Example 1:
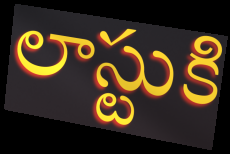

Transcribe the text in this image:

లాస్టుకి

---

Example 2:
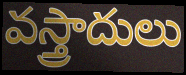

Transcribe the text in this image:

వస్త్రాదులు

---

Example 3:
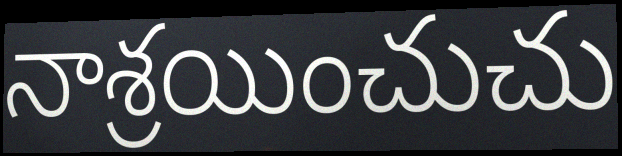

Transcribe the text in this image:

నాశ్రయించుచు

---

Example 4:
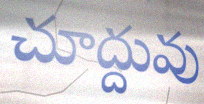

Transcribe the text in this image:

చూద్దువు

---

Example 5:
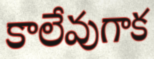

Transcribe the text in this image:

కాలేవుగాక